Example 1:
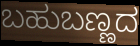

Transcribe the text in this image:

ಬಹುಬಣ್ಣದ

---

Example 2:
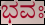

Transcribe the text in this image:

ಭವಃ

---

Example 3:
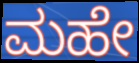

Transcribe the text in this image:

ಮಹೇ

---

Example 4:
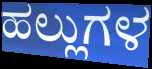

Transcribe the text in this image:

ಹಲ್ಲುಗಳ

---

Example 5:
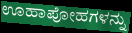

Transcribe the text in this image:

ಊಹಾಪೋಹಗಳನ್ನು